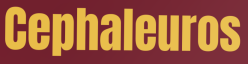
Cephaleuros